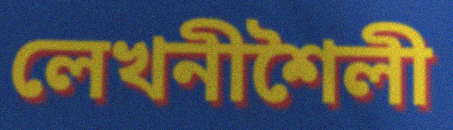
লেখনীশৈলী